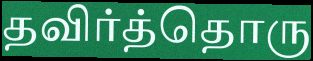
தவிர்த்தொரு